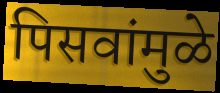
पिसवांमुळे